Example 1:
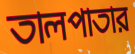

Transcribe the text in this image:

তালপাতার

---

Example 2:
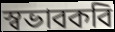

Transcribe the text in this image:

স্বভাবকবি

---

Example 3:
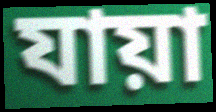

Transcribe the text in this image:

যায়া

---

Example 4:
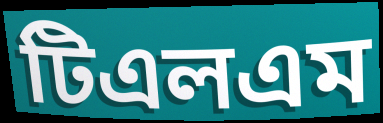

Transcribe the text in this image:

টিএলএম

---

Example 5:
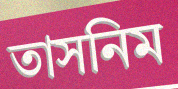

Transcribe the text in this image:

তাসনিম